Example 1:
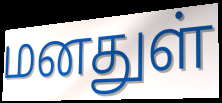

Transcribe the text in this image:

மனதுள்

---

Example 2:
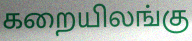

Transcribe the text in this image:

கறையிலங்கு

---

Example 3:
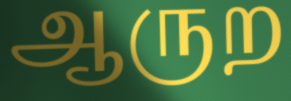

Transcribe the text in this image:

ஆருற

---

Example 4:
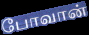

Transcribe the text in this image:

போவான்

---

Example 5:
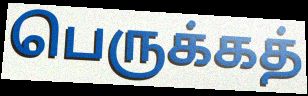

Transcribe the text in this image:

பெருக்கத்